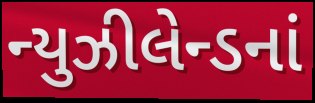
ન્યુઝીલેન્ડનાં